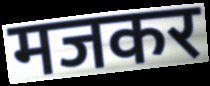
मजकर